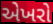
એખરો